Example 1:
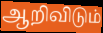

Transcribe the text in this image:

ஆறிவிடும்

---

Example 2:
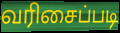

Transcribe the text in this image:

வரிசைப்படி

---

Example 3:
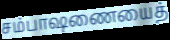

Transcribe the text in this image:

சம்பாஷணையைத்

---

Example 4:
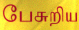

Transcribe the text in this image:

பேசுறிய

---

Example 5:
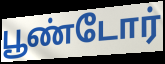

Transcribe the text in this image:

பூண்டோர்